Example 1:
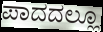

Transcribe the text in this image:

ಪಾದದಲ್ಲೂ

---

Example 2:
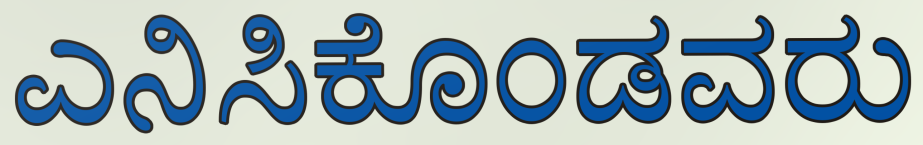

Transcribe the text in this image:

ಎನಿಸಿಕೊಂಡವರು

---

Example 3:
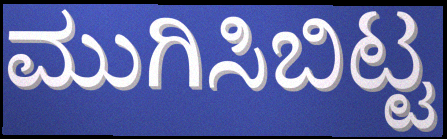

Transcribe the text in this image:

ಮುಗಿಸಿಬಿಟ್ಟ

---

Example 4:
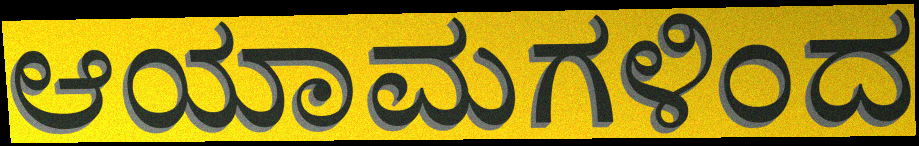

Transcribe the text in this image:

ಆಯಾಮಗಳಿಂದ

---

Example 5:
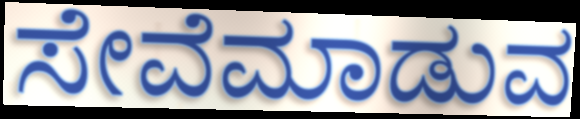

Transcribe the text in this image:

ಸೇವೆಮಾಡುವ